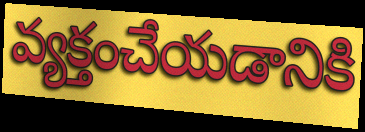
వ్యక్తంచేయడానికి